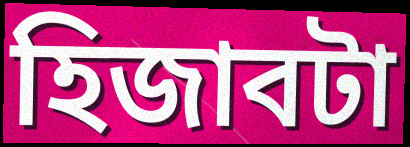
হিজাবটা